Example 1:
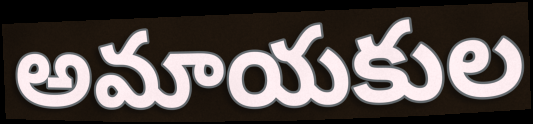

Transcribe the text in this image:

అమాయకుల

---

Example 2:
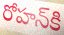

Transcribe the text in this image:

రోహన్‌కి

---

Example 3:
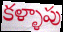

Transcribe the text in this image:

కళ్ళాపు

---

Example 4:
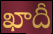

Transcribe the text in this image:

ఖాదీ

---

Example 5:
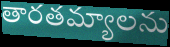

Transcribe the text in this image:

తారతమ్యాలను